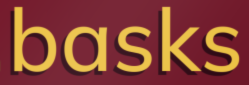
basks